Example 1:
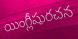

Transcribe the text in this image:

యింగ్లీషురచన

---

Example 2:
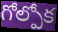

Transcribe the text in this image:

గోల్పోక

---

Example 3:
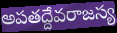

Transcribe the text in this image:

అపతద్దేవరాజస్య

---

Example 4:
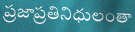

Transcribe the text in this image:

ప్రజాప్రతినిధులంతా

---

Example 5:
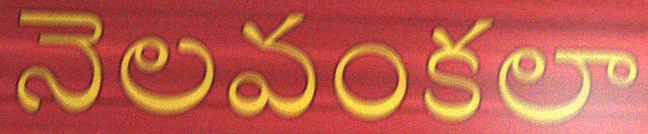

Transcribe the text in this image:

నెలవంకలా